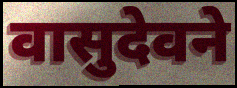
वासुदेवने